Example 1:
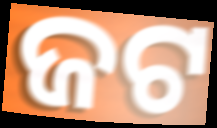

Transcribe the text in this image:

ଜଟ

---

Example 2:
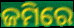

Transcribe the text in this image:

ଜମିରେ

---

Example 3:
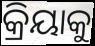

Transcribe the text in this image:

କ୍ରିୟାକୁ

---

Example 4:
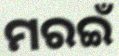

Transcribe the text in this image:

ମରଇଁ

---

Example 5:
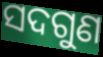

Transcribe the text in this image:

ସଦଗୁଣ